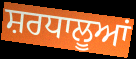
ਸ਼ਰਧਾਲੂਆਂ